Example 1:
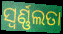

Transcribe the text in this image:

ସ୍ଵର୍ଣ୍ଣଲତା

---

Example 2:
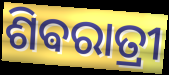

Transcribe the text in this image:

ଶିଵରାତ୍ରୀ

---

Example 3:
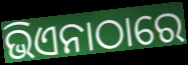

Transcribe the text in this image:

ଭିଏନାଠାରେ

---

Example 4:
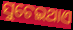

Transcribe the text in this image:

ସୁଚେଇଥାଏ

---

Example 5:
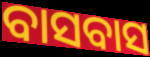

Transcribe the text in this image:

ବାସବାସ